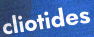
cliotides